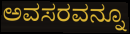
ಅವಸರವನ್ನೂ